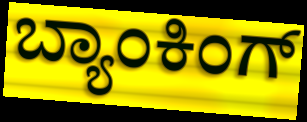
ಬ್ಯಾಂಕಿಂಗ್